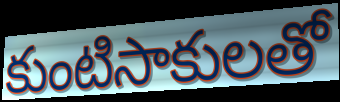
కుంటిసాకులతో